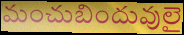
మంచుబిందువులై